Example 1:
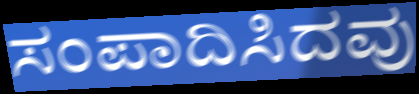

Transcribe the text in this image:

ಸಂಪಾದಿಸಿದವು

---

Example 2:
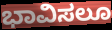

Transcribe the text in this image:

ಭಾವಿಸಲೂ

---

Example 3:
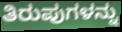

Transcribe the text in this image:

ತಿರುಪುಗಳನ್ನು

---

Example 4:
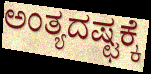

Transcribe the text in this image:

ಅಂತ್ಯದಷ್ಟಕ್ಕೆ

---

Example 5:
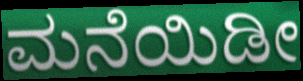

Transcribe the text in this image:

ಮನೆಯಿಡೀ